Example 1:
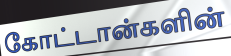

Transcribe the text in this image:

கோட்டான்களின்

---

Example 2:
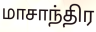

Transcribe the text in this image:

மாசாந்திர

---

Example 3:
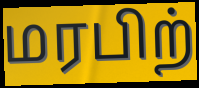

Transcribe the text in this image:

மரபிற்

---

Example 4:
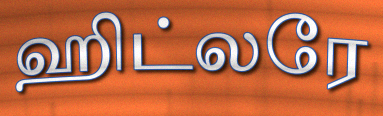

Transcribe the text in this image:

ஹிட்லரே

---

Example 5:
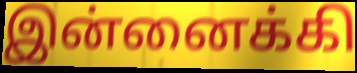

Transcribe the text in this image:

இன்னைக்கி